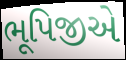
ભૂપિજીએ